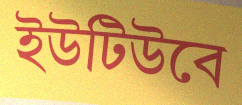
ইউটিউবে